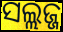
ସଲ୍ଲଜ୍ଜ